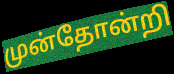
முன்தோன்றி